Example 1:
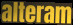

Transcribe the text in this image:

alteram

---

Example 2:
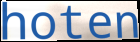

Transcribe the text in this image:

hoten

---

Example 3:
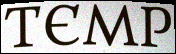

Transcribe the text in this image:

TEMP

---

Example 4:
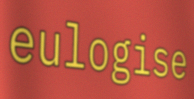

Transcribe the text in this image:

eulogise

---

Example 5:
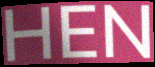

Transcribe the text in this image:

HEN